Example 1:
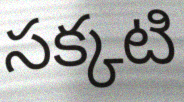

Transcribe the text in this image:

సక్కటి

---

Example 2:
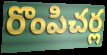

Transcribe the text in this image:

రొంపిచర్ల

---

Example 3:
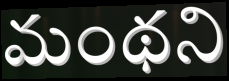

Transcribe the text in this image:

మంథని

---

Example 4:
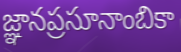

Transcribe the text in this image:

జ్ఞానప్రసూనాంబికా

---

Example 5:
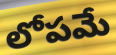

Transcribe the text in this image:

లోపమే